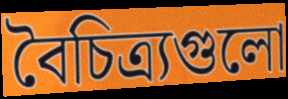
বৈচিত্র্যগুলো